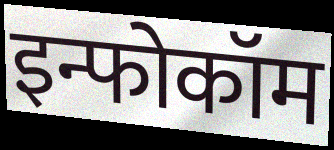
इन्फोकॉम